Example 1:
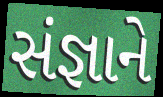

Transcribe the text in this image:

સંજ્ઞાને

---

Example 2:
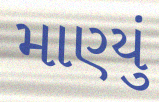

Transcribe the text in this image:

માણ્યું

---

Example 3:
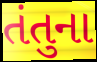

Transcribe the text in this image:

તંતુના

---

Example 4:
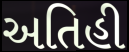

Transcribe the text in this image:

અતિહી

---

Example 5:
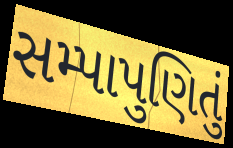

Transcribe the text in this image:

સમ્પાપુણિતું